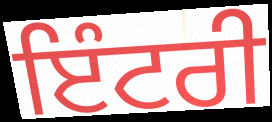
ਇੰਟਰੀ